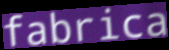
fabrica